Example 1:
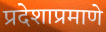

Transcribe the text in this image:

प्रदेशाप्रमाणे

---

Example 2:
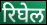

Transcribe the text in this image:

रिघेल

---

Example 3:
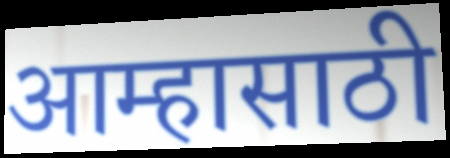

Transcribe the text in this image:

आम्हासाठी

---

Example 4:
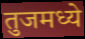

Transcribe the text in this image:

तुजमध्ये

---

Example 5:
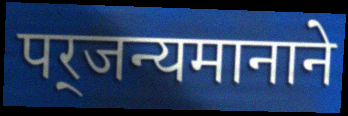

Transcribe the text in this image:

पर्जन्यमानाने